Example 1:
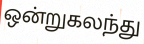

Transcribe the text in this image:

ஒன்றுகலந்து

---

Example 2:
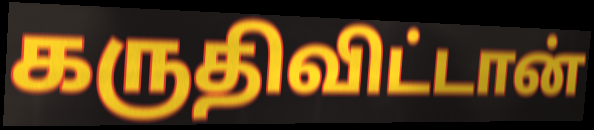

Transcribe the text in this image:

கருதிவிட்டான்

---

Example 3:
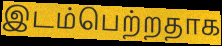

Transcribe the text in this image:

இடம்பெற்றதாக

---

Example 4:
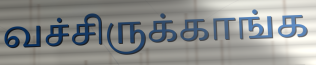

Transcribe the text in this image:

வச்சிருக்காங்க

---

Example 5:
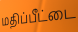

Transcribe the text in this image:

மதிப்பீட்டை